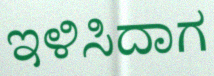
ಇಳಿಸಿದಾಗ